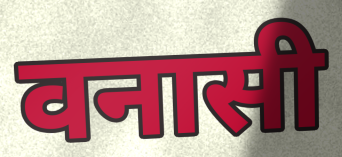
वनासी